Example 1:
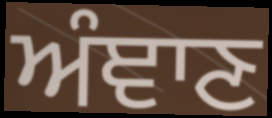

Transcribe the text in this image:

ਅੰਞਾਣ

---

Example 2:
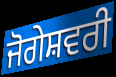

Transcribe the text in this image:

ਜੋਗੇਸ਼ਵਰੀ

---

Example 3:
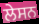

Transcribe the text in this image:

ਲੇਸਨ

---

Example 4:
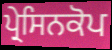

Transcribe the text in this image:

ਪ੍ਰੇਸਿਨਕੋਪ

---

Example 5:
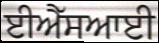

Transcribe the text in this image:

ਈਐੱਸਆਈ